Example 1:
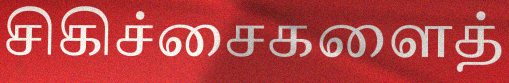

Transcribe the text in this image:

சிகிச்சைகளைத்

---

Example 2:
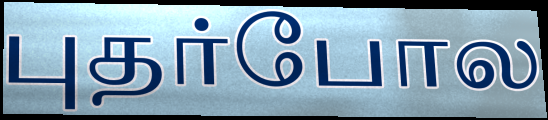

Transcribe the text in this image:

புதர்போல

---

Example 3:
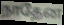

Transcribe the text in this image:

நாதேன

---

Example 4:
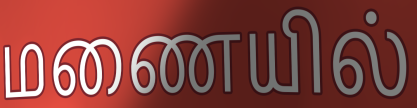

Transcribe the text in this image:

மணையில்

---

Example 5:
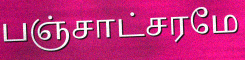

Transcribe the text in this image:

பஞ்சாட்சரமே